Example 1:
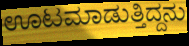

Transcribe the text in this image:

ಊಟಮಾಡುತ್ತಿದ್ದನು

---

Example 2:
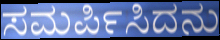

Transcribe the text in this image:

ಸಮರ್ಪಿಸಿದನು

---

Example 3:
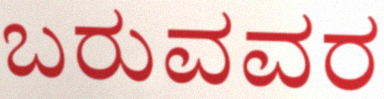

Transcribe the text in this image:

ಬರುವವರ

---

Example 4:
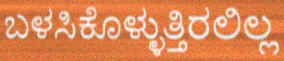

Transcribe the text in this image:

ಬಳಸಿಕೊಳ್ಳುತ್ತಿರಲಿಲ್ಲ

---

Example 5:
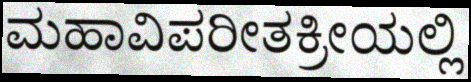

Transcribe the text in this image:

ಮಹಾವಿಪರೀತಕ್ರೀಯಲ್ಲಿ